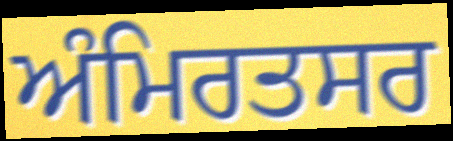
ਅੰਮਿਰਤਸਰ